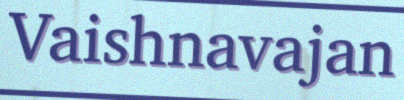
Vaishnavajan